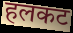
हलकट